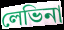
লেভিনা